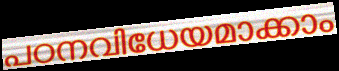
പഠനവിധേയമാക്കാം